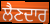
ਲੈਣਦਾਰ